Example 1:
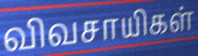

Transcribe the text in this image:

விவசாயிகள்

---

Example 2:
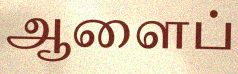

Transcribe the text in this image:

ஆளைப்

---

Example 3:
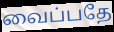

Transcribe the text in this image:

வைப்பதே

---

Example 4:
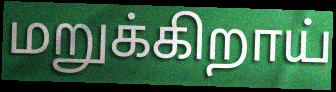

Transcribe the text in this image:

மறுக்கிறாய்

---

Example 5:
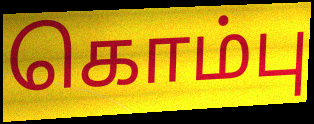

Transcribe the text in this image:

கொம்பு